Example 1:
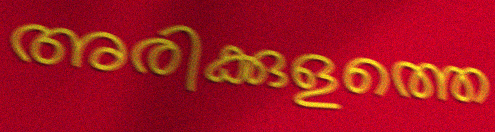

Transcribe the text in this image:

അരിക്കുളത്തെ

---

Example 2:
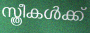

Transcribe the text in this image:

സ്ത്രീകൾക്ക്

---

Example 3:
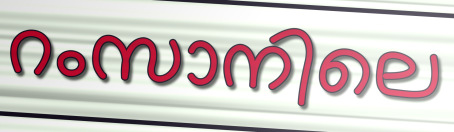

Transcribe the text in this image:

റംസാനിലെ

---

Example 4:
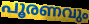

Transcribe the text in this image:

പൂരണവും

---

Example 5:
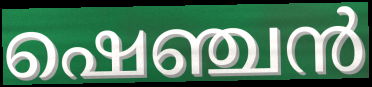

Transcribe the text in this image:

ഷെഞ്ചൻ